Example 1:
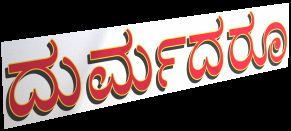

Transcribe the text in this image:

ದುರ್ಮದರೂ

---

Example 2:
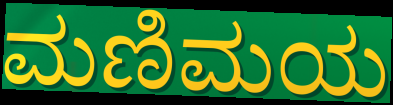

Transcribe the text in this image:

ಮಣಿಮಯ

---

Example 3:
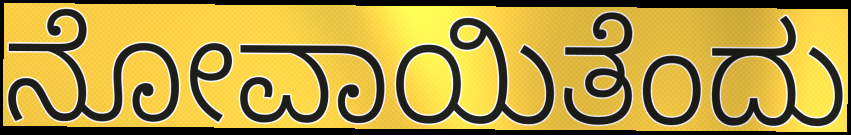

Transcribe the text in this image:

ನೋವಾಯಿತೆಂದು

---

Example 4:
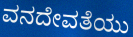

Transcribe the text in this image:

ವನದೇವತೆಯು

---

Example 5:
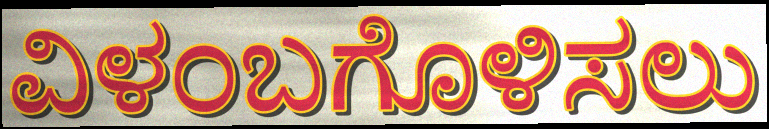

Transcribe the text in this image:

ವಿಳಂಬಗೊಳಿಸಲು